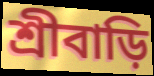
শ্রীবাড়ি